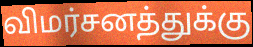
விமர்சனத்துக்கு